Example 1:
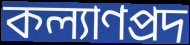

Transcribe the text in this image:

কল্যাণপ্রদ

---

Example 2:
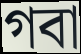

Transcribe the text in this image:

গবা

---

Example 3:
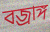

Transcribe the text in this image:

বজ্রাঙ্গ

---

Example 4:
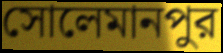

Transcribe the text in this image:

সোলেমানপুর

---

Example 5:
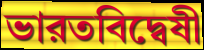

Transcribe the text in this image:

ভারতবিদ্বেষী